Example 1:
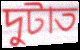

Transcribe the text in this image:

দুটাত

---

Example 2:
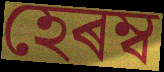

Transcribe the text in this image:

হেৰম্ব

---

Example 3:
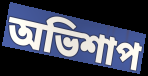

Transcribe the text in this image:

অভিশাপ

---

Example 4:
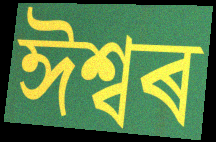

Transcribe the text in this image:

ঈশ্বৰ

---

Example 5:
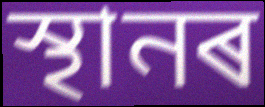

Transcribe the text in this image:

স্থানৰ